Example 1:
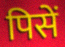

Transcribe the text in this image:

पिसें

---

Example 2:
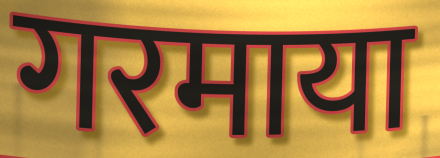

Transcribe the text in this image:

गरमाया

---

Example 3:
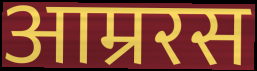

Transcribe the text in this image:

आम्ररस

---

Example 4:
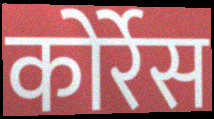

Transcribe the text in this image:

कोर्रेस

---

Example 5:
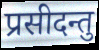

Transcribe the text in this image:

प्रसीदन्तु